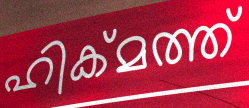
ഹിക്മത്ത്